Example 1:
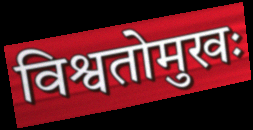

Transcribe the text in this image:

विश्वतोमुखः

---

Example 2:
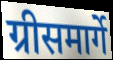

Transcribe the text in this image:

ग्रीसमार्गे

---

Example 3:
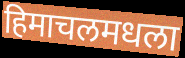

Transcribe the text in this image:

हिमाचलमधला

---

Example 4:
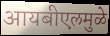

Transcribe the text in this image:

आयबीएलमुळे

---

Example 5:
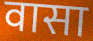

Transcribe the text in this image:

वासा